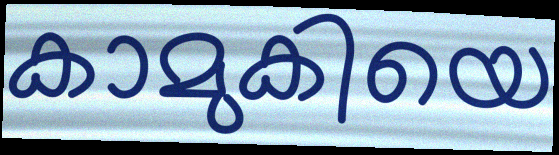
കാമുകിയെ